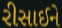
રીસાઈને